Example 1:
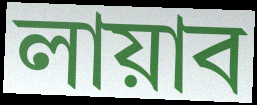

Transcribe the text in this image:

লায়াব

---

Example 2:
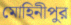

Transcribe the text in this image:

মোহিনীপুর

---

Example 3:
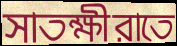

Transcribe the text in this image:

সাতক্ষীরাতে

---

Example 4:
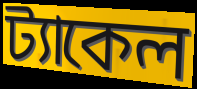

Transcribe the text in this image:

ট্যাকেল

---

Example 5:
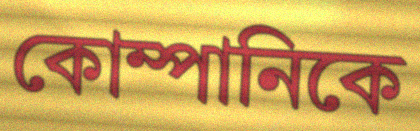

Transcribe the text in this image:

কোম্পানিকে